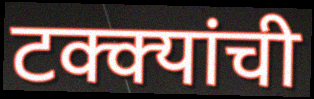
टक्क्यांची